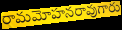
రామమోహనరావుగారు